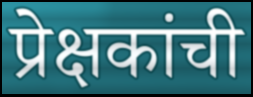
प्रेक्षकांची